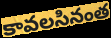
కావలసినంత